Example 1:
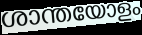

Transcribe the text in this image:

ശാന്തയോളം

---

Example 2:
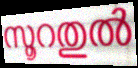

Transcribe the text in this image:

സൂറതുൽ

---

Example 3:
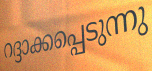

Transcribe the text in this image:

റദ്ദാക്കപ്പെടുന്നു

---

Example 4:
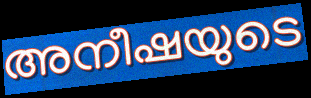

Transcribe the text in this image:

അനീഷയുടെ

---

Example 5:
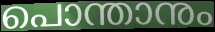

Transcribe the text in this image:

പൊന്താനും